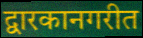
द्वारकानगरीत